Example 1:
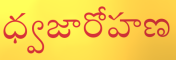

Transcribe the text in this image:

ధ్వజారోహణ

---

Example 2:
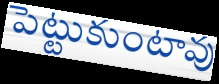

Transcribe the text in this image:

పెట్టుకుంటావు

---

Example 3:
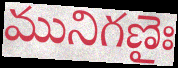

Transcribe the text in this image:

మునిగణైః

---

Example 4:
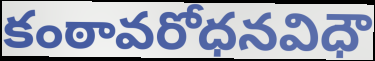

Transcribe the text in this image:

కంఠావరోధనవిధౌ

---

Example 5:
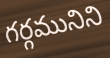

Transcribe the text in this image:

గర్గమునిని